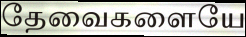
தேவைகளையே